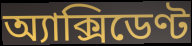
অ্যাক্সিডেণ্ট